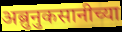
अब्रुनुकसानीच्या